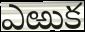
ఎఱుక